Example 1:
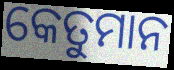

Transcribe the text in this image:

କେତୁମାନ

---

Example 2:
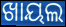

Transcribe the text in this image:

ଖାୟଲ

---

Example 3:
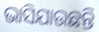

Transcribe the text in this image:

ଭାସିଯାଉଛନ୍ତି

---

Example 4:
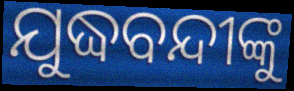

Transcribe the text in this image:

ଯୁଦ୍ଧବନ୍ଦୀଙ୍କୁ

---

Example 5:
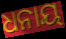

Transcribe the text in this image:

ଧନାୟ